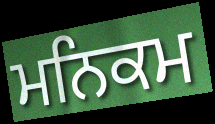
ਮਨਿਕਮ